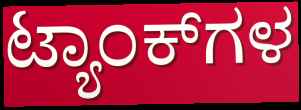
ಟ್ಯಾಂಕ್‌ಗಳ